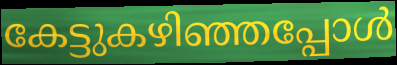
കേട്ടുകഴിഞ്ഞപ്പോൾ